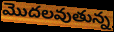
మొదలవుతున్న